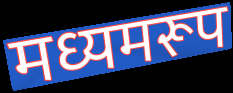
मध्यमरूप